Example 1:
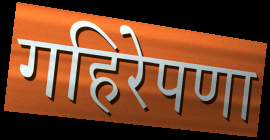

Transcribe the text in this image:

गहिरेपणा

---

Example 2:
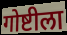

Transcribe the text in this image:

गोष्टीला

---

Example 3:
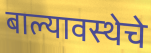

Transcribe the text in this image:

बाल्यावस्थेचे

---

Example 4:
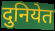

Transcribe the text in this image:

दुनियेत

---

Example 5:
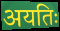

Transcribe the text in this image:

अयतिः